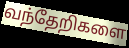
வந்தேறிகளை